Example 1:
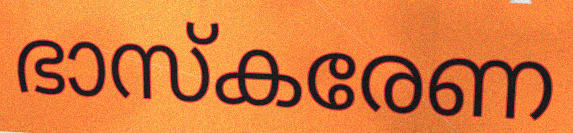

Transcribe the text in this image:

ഭാസ്കരേണ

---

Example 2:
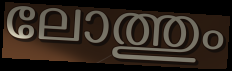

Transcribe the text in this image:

ലോത്തും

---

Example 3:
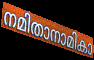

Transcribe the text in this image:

നമിതാനാമികാ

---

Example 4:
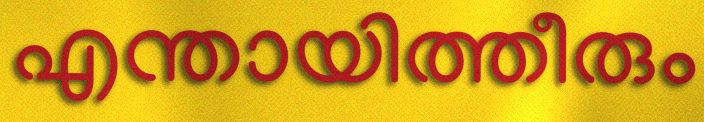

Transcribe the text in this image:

എന്തായിത്തീരും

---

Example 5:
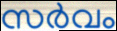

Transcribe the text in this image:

സർവം